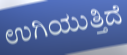
ಉಗಿಯುತ್ತಿದೆ